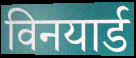
विनयार्ड